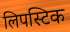
लिपस्टिक